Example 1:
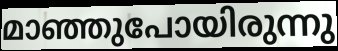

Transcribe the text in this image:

മാഞ്ഞുപോയിരുന്നു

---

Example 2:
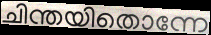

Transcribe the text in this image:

ചിന്തയിതൊന്നേ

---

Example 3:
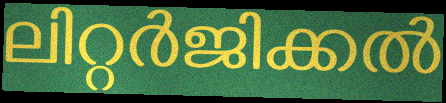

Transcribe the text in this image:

ലിറ്റർജിക്കൽ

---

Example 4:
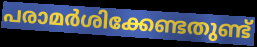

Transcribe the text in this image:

പരാമർശിക്കേണ്ടതുണ്ട്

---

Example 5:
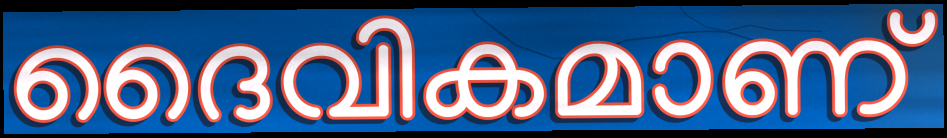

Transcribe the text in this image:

ദൈവികമാണ്